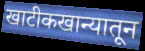
खाटीकखान्यातून